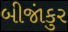
બીજાંકુર